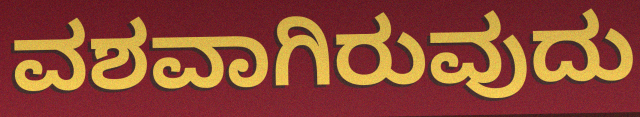
ವಶವಾಗಿರುವುದು